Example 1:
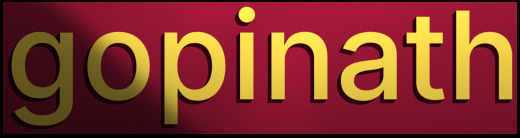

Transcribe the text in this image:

gopinath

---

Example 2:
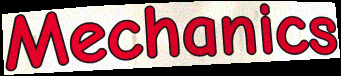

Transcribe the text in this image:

Mechanics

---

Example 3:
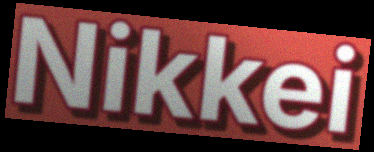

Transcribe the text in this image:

Nikkei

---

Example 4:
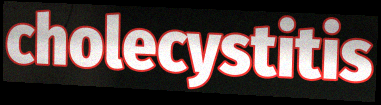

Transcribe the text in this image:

cholecystitis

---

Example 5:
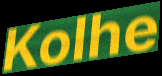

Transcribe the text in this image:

Kolhe